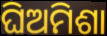
ଘିଅମିଶା